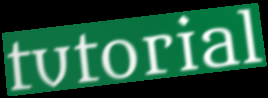
tutorial